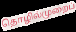
தொழில்முறைப்